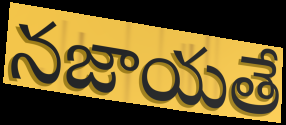
నజాయతే